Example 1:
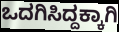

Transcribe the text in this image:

ಒದಗಿಸಿದ್ದಕ್ಕಾಗಿ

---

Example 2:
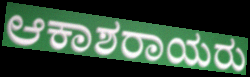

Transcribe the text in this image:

ಆಕಾಶರಾಯರು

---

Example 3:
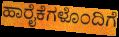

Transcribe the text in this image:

ಹಾರೈಕೆಗಳೊಂದಿಗೆ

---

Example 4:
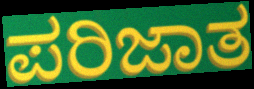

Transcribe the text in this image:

ಪರಿಜಾತ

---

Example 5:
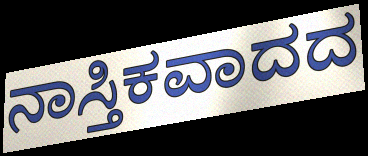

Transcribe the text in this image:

ನಾಸ್ತಿಕವಾದದ